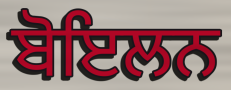
ਬੋਇਲਨ